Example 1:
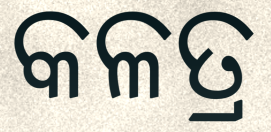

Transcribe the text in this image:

କଳତ୍ର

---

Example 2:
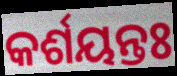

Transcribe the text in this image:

କର୍ଶୟନ୍ତଃ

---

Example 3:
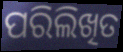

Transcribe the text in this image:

ପରିଲିଖିତ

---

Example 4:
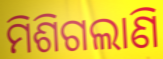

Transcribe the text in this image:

ମିଶିଗଲାଣି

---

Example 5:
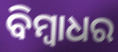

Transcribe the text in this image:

ବିମ୍ବାଧର